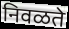
निवळते